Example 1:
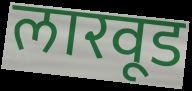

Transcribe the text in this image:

लारवूड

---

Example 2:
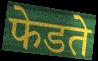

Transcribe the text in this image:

फेडते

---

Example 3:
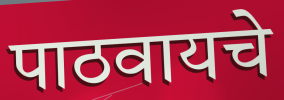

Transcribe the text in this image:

पाठवायचे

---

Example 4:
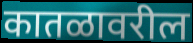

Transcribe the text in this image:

कातळावरील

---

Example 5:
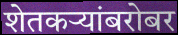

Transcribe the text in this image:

शेतकर्‍यांबरोबर